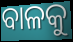
ବାଳକୁ